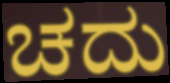
ಚದು